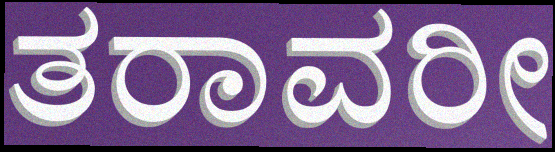
ತರಾವರೀ